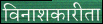
विनाशकारीता